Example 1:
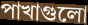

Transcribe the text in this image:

পাখাগুলো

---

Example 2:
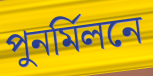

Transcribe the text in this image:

পুনর্মিলনে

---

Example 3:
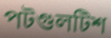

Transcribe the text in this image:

পটগুলটিশ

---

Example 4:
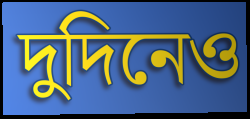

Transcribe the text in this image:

দুদিনেও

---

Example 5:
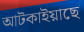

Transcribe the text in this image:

আটকাইয়াছে